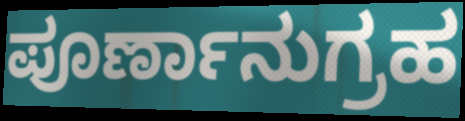
ಪೂರ್ಣಾನುಗ್ರಹ